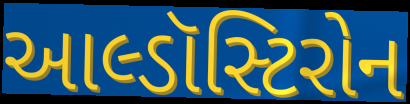
આલ્ડૉસ્ટિરોન